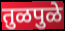
तुळपुळे